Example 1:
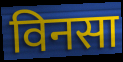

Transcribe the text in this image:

विनसा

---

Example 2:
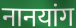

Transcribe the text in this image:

नानयांग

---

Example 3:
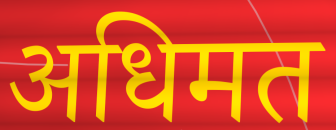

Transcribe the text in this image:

अधिमत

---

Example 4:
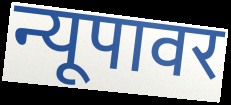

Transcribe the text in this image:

न्यूपावर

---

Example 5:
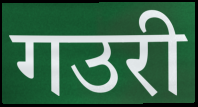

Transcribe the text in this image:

गउरी